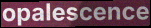
opalescence